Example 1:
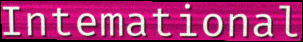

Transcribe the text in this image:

Intemational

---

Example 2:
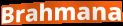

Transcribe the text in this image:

Brahmana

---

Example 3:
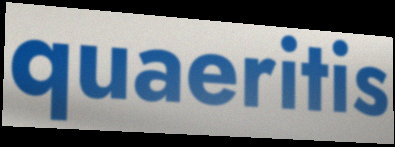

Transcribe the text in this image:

quaeritis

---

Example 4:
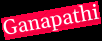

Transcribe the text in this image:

Ganapathi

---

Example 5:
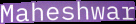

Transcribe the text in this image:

Maheshwar